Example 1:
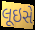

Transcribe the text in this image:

લૂઇસે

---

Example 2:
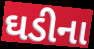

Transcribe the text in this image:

ઘડીના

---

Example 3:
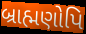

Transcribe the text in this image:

બ્રાહ્મણોપિ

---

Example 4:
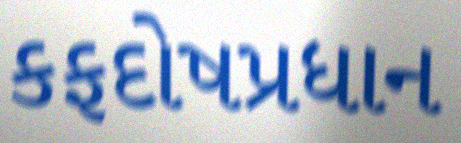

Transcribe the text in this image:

કફદોષપ્રધાન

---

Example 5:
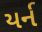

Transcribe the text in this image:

યર્ન